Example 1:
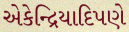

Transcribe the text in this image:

એકેન્દ્રિયાદિપણે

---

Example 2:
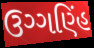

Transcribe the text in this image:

ઉગ્ગણ્હિં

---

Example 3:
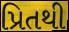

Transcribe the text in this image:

પ્રિતથી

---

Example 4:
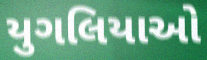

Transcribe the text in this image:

યુગલિયાઓ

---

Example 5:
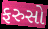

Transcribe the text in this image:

ફરુસો